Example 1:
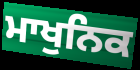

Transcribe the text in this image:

ਮਾਖੁਨਿਕ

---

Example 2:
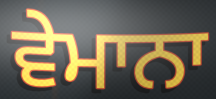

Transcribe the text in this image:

ਵੇਮਾਨਾ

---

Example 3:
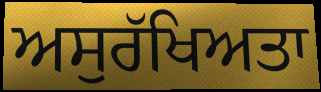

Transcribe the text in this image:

ਅਸੁਰੱਖਿਅਤਾ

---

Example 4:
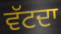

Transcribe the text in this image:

ਵੱਟਦਾ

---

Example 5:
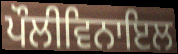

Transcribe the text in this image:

ਪੌਲੀਵਿਨਾਇਲ